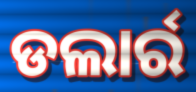
ଡଲାର୍ର